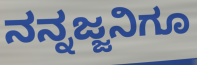
ನನ್ನಜ್ಜನಿಗೂ